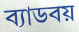
ব্যাডবয়